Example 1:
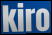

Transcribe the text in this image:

kiro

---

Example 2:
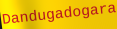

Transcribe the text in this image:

Dandugadogara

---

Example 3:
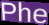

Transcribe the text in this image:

Phe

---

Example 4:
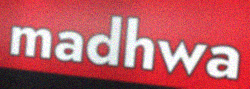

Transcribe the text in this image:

madhwa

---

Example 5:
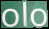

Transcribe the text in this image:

olo